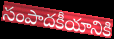
సంపాదకీయానికి